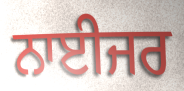
ਨਾਈਜਰ